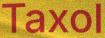
Taxol